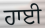
ਹਾਈ